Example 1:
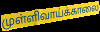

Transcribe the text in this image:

முள்ளிவாய்க்காலை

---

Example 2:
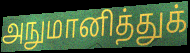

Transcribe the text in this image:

அநுமானித்துக்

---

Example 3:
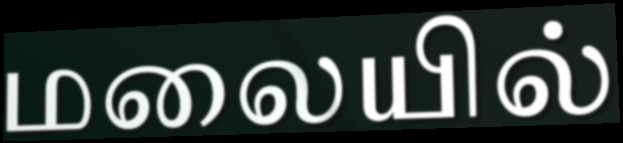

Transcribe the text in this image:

மலையில்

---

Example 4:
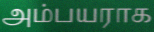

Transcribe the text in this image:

அம்பயராக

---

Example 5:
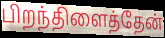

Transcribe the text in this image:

பிறந்திளைத்தேன்